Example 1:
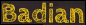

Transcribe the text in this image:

Badian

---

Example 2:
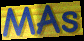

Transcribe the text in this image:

MAs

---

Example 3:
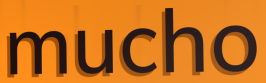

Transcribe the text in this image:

mucho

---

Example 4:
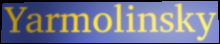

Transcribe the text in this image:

Yarmolinsky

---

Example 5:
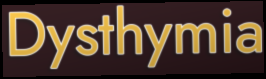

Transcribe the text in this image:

Dysthymia